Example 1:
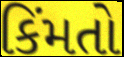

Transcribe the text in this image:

કિંમતો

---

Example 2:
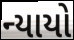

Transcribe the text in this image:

ન્યાયો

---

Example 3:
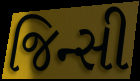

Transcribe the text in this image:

જિન્સી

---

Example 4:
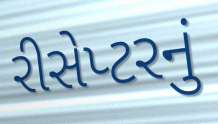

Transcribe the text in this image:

રીસેપ્ટરનું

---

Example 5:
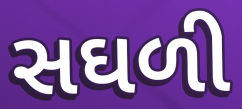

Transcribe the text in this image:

સઘળી